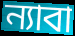
ন্যাবা